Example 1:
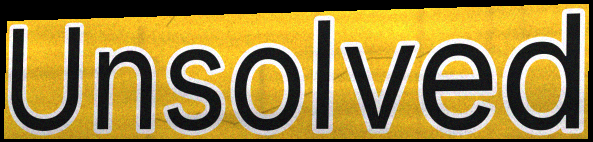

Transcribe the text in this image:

Unsolved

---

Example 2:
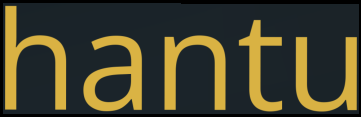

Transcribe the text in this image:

hantu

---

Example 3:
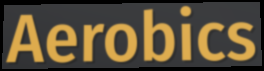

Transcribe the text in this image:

Aerobics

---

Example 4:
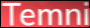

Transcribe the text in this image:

Temni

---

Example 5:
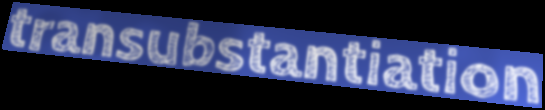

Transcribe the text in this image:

transubstantiation